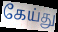
கேய்து